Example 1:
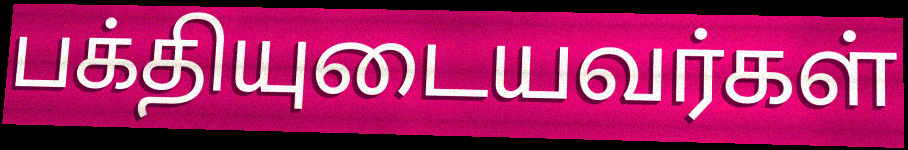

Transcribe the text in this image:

பக்தியுடையவர்கள்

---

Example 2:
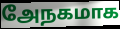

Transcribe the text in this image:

அேநகமாக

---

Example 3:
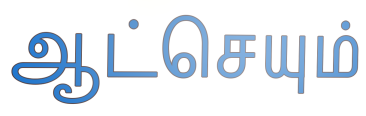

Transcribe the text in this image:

ஆட்செயும்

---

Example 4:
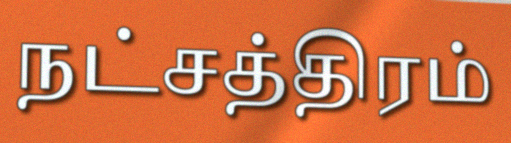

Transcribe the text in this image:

நட்சத்திரம்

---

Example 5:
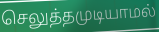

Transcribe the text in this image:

செலுத்தமுடியாமல்